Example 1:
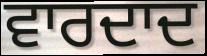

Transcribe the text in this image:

ਵਾਰਦਾਦ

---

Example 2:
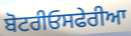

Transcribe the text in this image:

ਬੋਟਰੀਓਸਫੇਰੀਆ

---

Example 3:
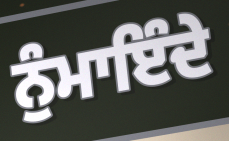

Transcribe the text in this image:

ਨੁੰਮਾਇੰਦੇ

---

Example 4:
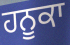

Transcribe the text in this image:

ਹਨੂਕਾ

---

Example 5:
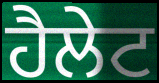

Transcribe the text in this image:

ਹੈਲੇਟ